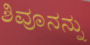
ಶಿವೂನನ್ನು